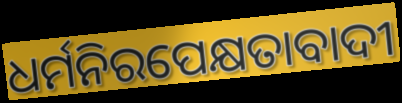
ଧର୍ମନିରପେକ୍ଷତାବାଦୀ